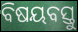
ବିଷୟବସ୍ତୁ